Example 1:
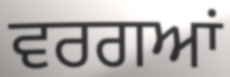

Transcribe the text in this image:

ਵਰਗਆਂ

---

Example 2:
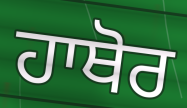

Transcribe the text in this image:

ਹਾਥੋਰ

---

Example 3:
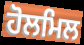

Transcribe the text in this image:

ਹੋਲਮਿਲ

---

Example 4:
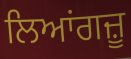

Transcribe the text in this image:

ਲਿਆਂਗਜ਼ੂ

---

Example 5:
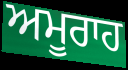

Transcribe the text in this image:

ਅਮੂਰਾਹ